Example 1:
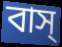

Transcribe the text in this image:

বাস্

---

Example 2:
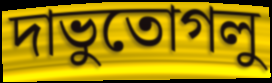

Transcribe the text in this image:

দাভুতোগলু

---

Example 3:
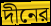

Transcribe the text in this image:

দীনের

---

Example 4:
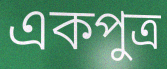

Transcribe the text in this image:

একপুত্র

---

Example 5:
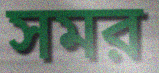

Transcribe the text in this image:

সমর